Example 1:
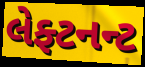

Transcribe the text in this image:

લેફ્ટનન્ટ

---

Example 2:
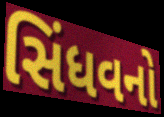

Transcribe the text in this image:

સિંધવનો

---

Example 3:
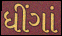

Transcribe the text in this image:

ધીંગાં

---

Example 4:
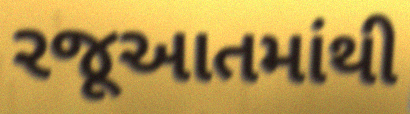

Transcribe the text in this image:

રજૂઆતમાંથી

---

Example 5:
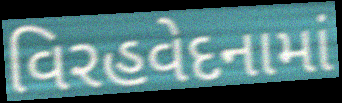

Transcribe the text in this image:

વિરહવેદનામાં